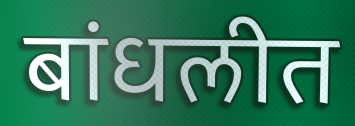
बांधलीत